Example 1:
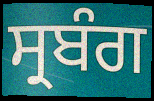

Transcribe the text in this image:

ਸ੍ਰਬੰਗ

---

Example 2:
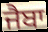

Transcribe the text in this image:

ਜੈਬਾ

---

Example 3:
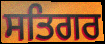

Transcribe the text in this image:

ਸਤਿਗਰ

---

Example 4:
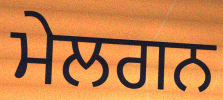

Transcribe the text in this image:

ਮੇਲਗਨ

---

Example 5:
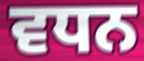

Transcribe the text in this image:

ਵਧਨ